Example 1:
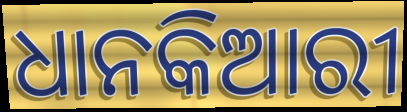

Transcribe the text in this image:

ଧାନକିଆରୀ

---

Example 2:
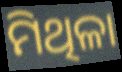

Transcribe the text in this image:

ମିଥିଳା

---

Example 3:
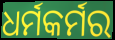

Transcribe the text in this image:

ଧର୍ମକର୍ମର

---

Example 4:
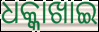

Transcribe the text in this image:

ଧକ୍କାଖାଇ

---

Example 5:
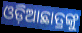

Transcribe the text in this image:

ଓଡ଼ିଆଛାତ୍ରଙ୍କୁ